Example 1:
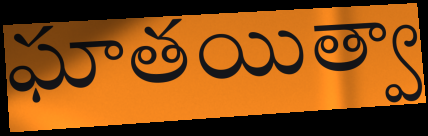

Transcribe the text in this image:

ఘాతయిత్వా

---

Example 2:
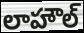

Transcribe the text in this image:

లాహౌల్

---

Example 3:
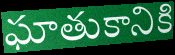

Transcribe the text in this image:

ఘాతుకానికి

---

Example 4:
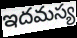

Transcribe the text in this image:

ఇదమస్య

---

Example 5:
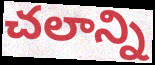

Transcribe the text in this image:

చలాన్ని